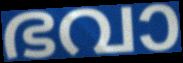
ഭവാ